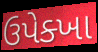
ઉપેક્ખા